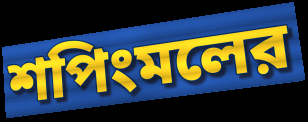
শপিংমলের